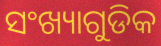
ସଂଖ୍ୟାଗୁଡିକ